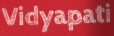
Vidyapati